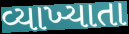
વ્યાખ્યાતા